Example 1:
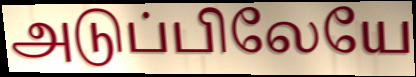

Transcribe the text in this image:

அடுப்பிலேயே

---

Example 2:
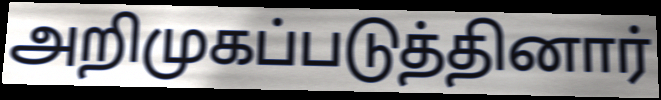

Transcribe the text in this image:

அறிமுகப்படுத்தினார்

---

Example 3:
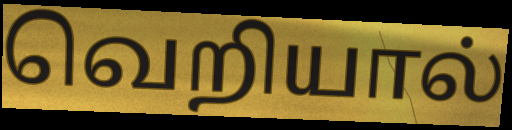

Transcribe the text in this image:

வெறியால்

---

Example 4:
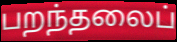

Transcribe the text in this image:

பறந்தலைப்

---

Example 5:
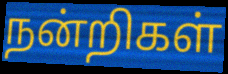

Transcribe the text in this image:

நன்றிகள்